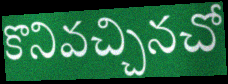
కొనివచ్చినచో